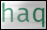
haq